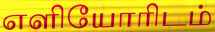
எளியோரிடம்